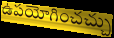
ఉపయోగించచ్చు